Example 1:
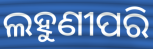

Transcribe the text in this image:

ଲହୁଣୀପରି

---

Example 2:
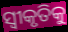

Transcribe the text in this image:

ସ୍ବୀକୃତିକୁ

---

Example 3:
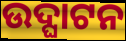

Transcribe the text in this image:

ଉଦ୍ଘାଟନ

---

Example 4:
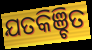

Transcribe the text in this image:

ଯତକିଞ୍ଚିତ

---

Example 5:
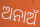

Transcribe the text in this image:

ଅନାଅଁ